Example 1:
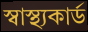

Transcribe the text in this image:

স্বাস্থ্যকার্ড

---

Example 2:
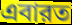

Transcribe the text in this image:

এবারত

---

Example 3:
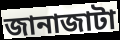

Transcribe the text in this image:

জানাজাটা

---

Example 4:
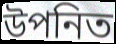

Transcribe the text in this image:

উপনিত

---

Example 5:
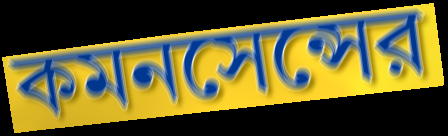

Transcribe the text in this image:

কমনসেন্সের